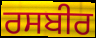
ਰਸਬੀਰ